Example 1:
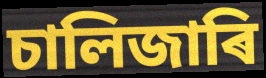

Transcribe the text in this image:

চালিজাৰি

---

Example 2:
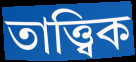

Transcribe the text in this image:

তাত্ত্বিক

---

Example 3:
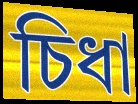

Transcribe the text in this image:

চিধা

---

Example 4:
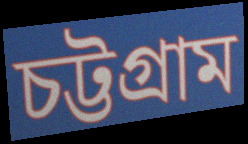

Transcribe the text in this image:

চট্টগ্ৰাম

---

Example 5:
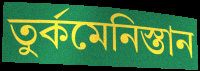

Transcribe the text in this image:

তুৰ্কমেনিস্তান